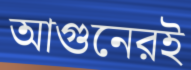
আগুনেরই